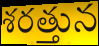
శరత్తున